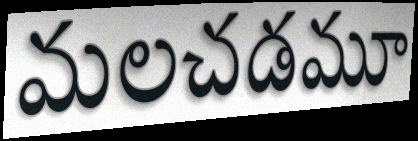
మలచడమూ